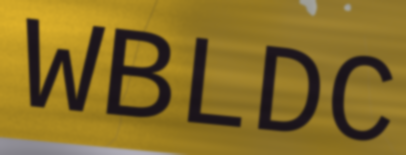
WBLDC